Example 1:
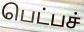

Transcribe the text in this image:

பெட்பச்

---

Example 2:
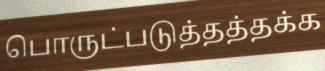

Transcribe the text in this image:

பொருட்படுத்தத்தக்க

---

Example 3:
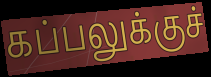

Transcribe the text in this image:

கப்பலுக்குச்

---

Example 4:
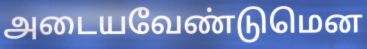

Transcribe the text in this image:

அடையவேண்டுமென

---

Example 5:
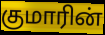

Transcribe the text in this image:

குமாரின்